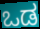
ಒಡ